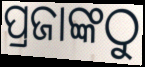
ପ୍ରଜାଙ୍କଠୁ